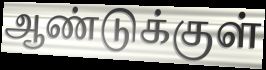
ஆண்டுக்குள்